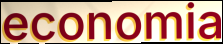
economia